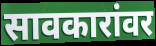
सावकारांवर